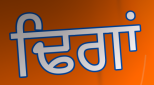
ਢਿਗਾਂ